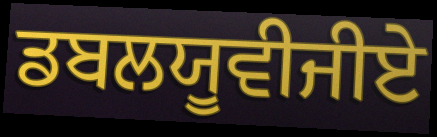
ਡਬਲਯੂਵੀਜੀਏ